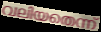
വലിയതെന്ന്